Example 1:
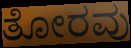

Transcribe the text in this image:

ತೋರವು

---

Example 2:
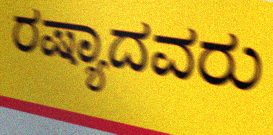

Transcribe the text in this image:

ರಷ್ಯಾದವರು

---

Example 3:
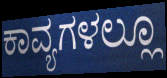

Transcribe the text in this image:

ಕಾವ್ಯಗಳಲ್ಲೂ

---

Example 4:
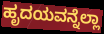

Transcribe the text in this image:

ಹೃದಯವನ್ನೆಲ್ಲಾ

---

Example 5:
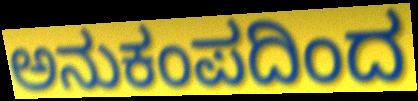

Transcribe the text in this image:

ಅನುಕಂಪದಿಂದ